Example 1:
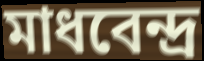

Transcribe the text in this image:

মাধবেন্দ্র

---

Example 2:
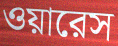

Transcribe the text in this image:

ওয়ারেস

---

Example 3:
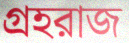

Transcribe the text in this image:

গ্রহরাজ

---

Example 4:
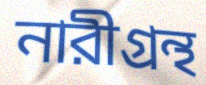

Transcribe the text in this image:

নারীগ্রন্থ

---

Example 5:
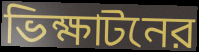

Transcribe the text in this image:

ভিক্ষাটনের